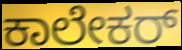
ಕಾಲೇಕರ್